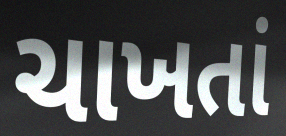
ચાખતાં